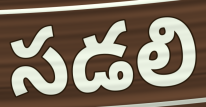
సడలి